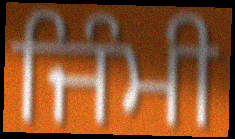
ਜਿੰਮੀ